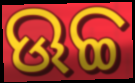
ଊଚ୍ଚ